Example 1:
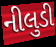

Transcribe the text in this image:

નીલુડી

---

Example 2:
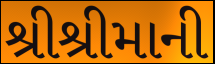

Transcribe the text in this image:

શ્રીશ્રીમાની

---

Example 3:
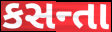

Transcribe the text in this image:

કસન્તા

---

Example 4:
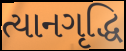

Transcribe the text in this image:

ત્યાનગૃદ્ધિ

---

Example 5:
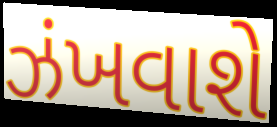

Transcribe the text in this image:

ઝંખવાશે